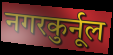
नगरकुर्नूल